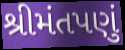
શ્રીમંતપણું